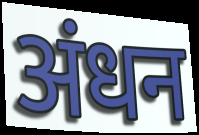
अंधन